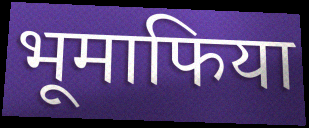
भूमाफिया